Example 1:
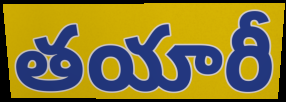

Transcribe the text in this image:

తయారీ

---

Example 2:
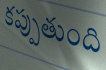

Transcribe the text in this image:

కప్పుతుంది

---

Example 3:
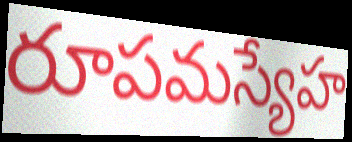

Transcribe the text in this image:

రూపమస్యేహ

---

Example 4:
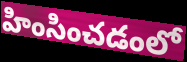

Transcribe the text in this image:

హింసించడంలో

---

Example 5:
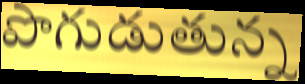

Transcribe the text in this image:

పొగుడుతున్న